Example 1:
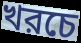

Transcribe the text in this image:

খরচে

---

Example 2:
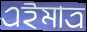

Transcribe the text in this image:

এইমাত্র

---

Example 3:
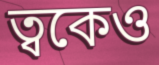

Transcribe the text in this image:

ত্বকেও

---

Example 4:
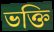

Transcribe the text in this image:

ভক্তি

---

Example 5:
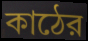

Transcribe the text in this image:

কাঠের